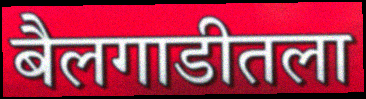
बैलगाडीतला